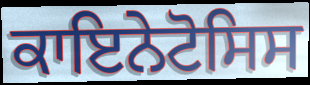
ਕਾਇਨੇਟੋਸਿਸ